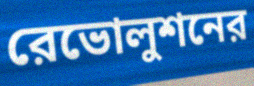
রেভোলুশনের